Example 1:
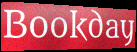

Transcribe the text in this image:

Bookday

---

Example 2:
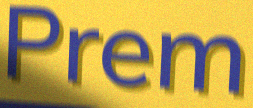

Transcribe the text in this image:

Prem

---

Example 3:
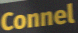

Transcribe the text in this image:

Connel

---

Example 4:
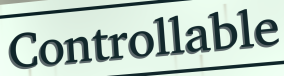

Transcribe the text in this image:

Controllable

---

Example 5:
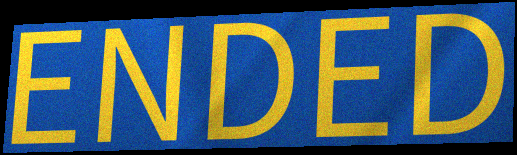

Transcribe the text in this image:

ENDED